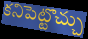
కనిపెట్టొచ్చు